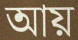
আয়